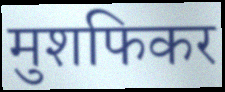
मुशफिकर